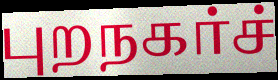
புறநகர்ச்